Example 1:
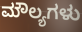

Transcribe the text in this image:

ಮೌಲ್ಯಗಳು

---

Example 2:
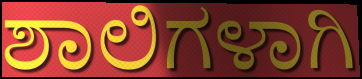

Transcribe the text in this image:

ಶಾಲಿಗಳಾಗಿ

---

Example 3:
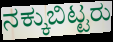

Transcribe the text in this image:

ನಕ್ಕುಬಿಟ್ಟರು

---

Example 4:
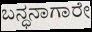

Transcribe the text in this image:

ಬನ್ಧನಾಗಾರೇ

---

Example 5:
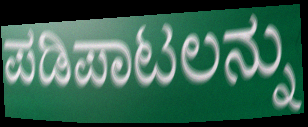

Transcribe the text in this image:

ಪಡಿಪಾಟಲನ್ನು